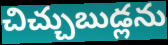
చిచ్చుబుడ్లను